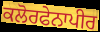
ਕਲੋਰਫੇਨਾਪੀਰ